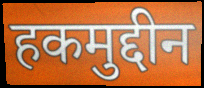
हकमुद्दीन